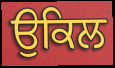
ਉਕਿਲ